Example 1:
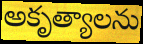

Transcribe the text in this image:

అకృత్యాలను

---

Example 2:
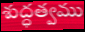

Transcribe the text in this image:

శుద్ధత్వము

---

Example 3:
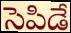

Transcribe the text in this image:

సెపిడే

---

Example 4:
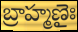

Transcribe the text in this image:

బ్రాహ్మణైః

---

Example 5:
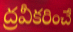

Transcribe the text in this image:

ద్రవీకరించే